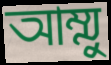
আম্মু